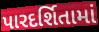
પારદર્શિતામાં